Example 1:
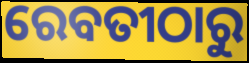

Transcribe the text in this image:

ରେବତୀଠାରୁ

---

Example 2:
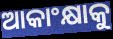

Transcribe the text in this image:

ଆକାଂକ୍ଷାକୁ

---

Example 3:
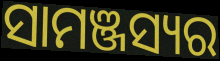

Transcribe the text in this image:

ସାମଞ୍ଜସ୍ୟର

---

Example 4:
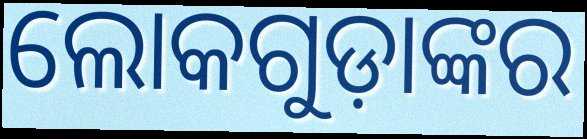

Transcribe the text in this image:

ଲୋକଗୁଡ଼ାଙ୍କର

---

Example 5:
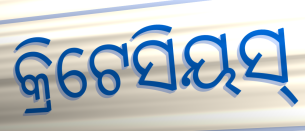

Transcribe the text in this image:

କ୍ରିଟେସିୟସ୍